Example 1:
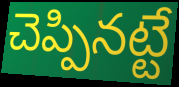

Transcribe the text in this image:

చెప్పినట్టే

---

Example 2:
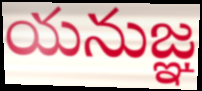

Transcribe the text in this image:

యనుజ్ఞ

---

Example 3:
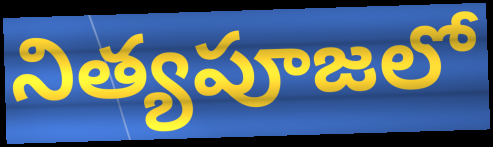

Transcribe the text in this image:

నిత్యపూజలో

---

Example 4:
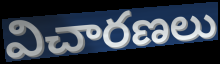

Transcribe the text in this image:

విచారణలు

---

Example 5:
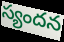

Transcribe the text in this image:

స్యందన